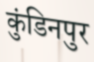
कुंडिनपुर